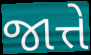
જાત્તે